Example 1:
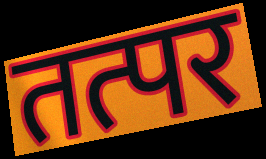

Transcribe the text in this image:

तत्‍पर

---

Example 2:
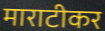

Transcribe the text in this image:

माराटीकर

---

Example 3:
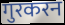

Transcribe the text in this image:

गुरकरन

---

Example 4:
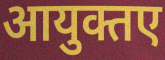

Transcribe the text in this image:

आयुक्तए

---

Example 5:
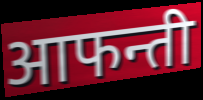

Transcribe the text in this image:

आफन्ती